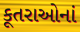
કૂતરાઓનાં